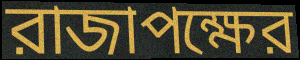
রাজাপক্ষের